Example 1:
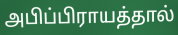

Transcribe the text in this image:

அபிப்பிராயத்தால்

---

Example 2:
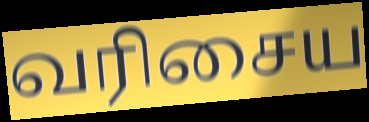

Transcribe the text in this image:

வரிசைய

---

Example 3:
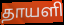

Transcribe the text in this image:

தாயளி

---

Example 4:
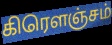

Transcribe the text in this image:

கிரௌஞ்சம்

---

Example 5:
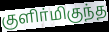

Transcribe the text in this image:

குளிர்மிகுந்த